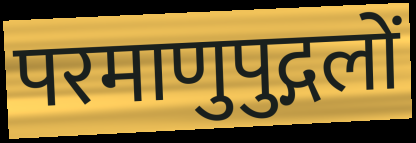
परमाणुपुद्गलों